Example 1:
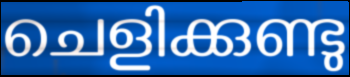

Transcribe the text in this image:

ചെളിക്കുണ്ടു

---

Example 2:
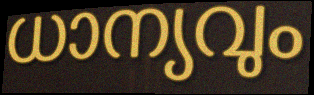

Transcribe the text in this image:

ധാന്യവും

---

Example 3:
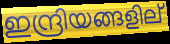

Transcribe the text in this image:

ഇന്ദ്രിയങ്ങളില്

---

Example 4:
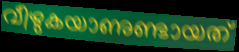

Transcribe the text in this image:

വീഴുകയാണുണ്ടായത്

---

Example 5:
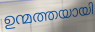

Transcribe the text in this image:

ഉന്മത്തയായി